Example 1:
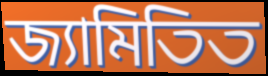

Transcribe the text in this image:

জ্যামিতিত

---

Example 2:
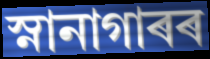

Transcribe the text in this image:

স্নানাগাৰৰ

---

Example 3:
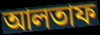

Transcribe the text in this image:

আলতাফ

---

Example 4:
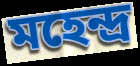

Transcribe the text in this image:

মহেন্দ্ৰ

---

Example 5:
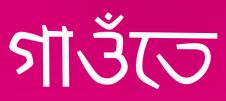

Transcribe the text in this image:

গাওঁতে